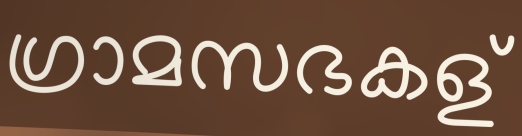
ഗ്രാമസഭകള്